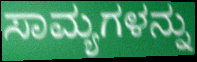
ಸಾಮ್ಯಗಳನ್ನು